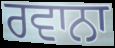
ਰਵਾਨਾ